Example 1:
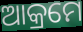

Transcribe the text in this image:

ଆକ୍ରମେ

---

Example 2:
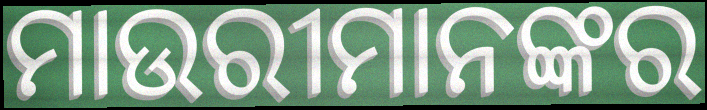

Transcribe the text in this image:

ମାଉରୀମାନଙ୍କର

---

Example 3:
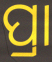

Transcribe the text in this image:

ପ୍ରା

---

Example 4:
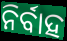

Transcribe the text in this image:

ନିର୍ବାହ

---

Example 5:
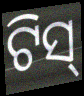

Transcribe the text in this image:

ଟିସ୍